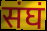
संघं